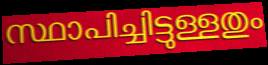
സ്ഥാപിച്ചിട്ടുള്ളതും